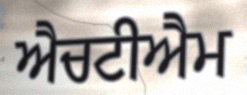
ਐਚਟੀਐਮ